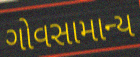
ગોવસામાન્ય